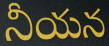
నీయన